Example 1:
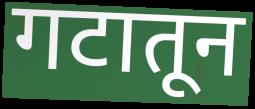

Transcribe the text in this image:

गटातून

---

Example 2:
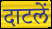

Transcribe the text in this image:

दाटलें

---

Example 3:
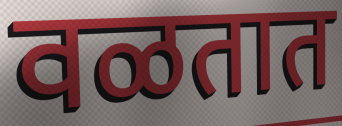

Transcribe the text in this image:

वळतात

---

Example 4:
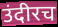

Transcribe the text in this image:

उंदीरच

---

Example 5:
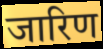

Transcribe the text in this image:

जारिण